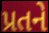
પ્રતને